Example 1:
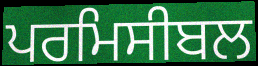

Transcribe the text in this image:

ਪਰਮਿਸੀਬਲ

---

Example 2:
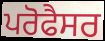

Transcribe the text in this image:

ਪਰੋਫੈਸਰ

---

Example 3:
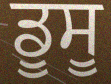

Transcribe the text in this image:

ਡੂਸੂ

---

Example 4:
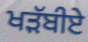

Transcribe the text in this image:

ਖੜੱਬੀਏ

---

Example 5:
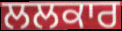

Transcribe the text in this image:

ਲਲਕਾਰ